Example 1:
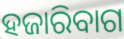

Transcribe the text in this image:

ହଜାରିବାଗ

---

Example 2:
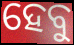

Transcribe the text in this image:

ହେବୁ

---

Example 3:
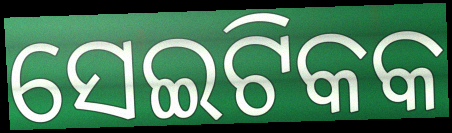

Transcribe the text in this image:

ସେଇଟିକକ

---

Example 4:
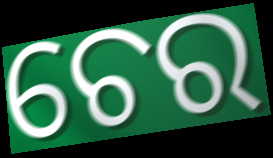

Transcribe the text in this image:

ଚେର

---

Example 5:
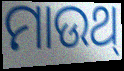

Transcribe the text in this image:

ମାଉଥ୍